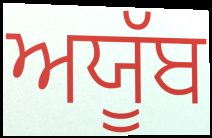
ਅਯੂੱਬ